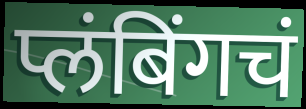
प्लंबिंगचं